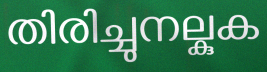
തിരിച്ചുനല്കുക